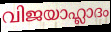
വിജയാഹ്ലാദം